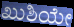
ಖುಶಿಯೇ